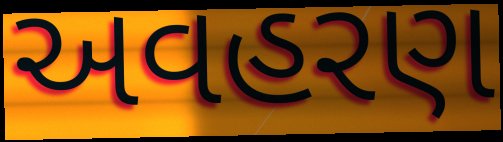
અવહરણ